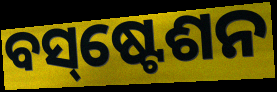
ବସ୍‌ଷ୍ଟେଶନ